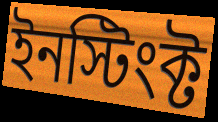
ইনস্টিংক্ট